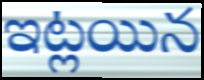
ఇట్లయిన